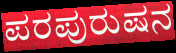
ಪರಪುರುಷನ